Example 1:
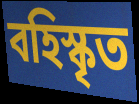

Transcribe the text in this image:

বহিস্কৃত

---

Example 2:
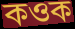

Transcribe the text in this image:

কওক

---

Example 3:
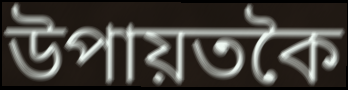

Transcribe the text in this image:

উপায়তকৈ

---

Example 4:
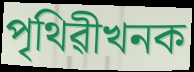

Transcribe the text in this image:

পৃথিৱীখনক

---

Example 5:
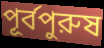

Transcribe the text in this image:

পূৰ্বপুৰুষ